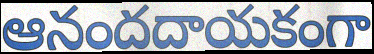
ఆనందదాయకంగా